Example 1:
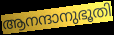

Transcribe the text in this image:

ആനന്ദാനുഭൂതി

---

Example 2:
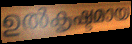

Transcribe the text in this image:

ഉൽകൃഷ്ടമായ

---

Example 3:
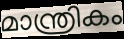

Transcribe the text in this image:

മാന്ത്രികം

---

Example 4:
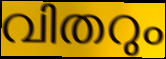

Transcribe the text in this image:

വിതറും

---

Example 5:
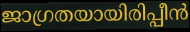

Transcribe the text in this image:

ജാഗ്രതയായിരിപ്പീൻ